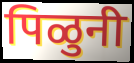
पिळुनी